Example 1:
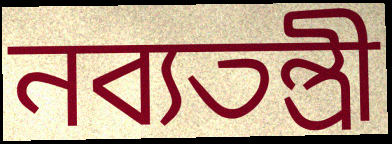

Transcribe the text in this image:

নব্যতন্ত্রী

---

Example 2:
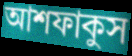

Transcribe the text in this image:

আশফাকুস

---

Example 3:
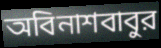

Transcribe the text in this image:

অবিনাশবাবুর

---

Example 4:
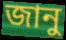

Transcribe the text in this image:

জানু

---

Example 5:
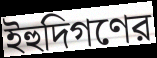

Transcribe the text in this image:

ইহুদিগণের